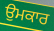
ਉਮਕਾਰ